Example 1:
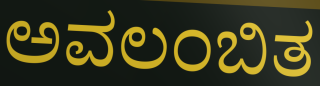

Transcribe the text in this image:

ಅವಲಂಬಿತ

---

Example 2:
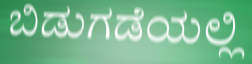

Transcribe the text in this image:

ಬಿಡುಗಡೆಯಲ್ಲಿ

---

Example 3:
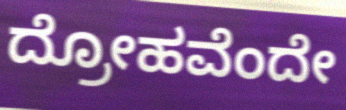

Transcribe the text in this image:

ದ್ರೋಹವೆಂದೇ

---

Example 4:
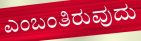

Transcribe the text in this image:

ಎಂಬಂತಿರುವುದು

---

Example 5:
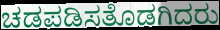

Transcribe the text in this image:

ಚಡಪಡಿಸತೊಡಗಿದರು